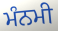
ਮੰਨਮੀ